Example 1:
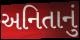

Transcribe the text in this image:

અનિતાનું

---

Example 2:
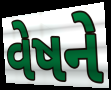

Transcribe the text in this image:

વેષને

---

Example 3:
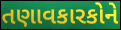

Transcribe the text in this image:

તણાવકારકોને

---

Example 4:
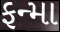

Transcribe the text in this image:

ફન્મા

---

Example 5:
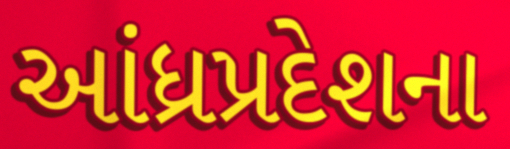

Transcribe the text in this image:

આંધ્રપ્રદેશના